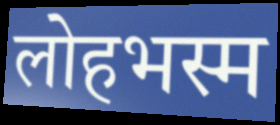
लोहभस्म